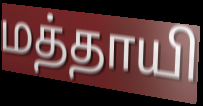
மத்தாயி